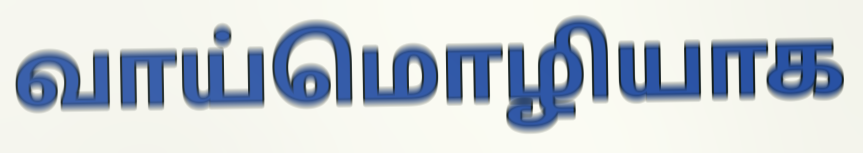
வாய்மொழியாக